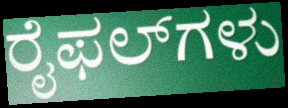
ರೈಫಲ್‌ಗಳು